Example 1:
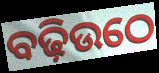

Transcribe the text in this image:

ବଢ଼ିଉଠେ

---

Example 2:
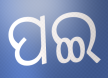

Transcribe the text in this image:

ପଇ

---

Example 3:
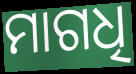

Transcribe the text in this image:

ମାଗଧି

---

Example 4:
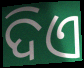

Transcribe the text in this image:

ଦିଏ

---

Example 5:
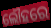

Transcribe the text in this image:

ଲୌହରେ